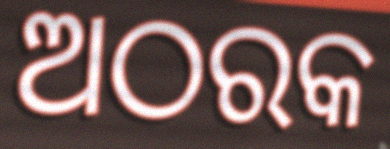
ଅଠରକ